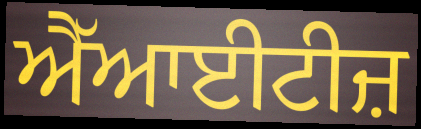
ਐੱਆਈਟੀਜ਼